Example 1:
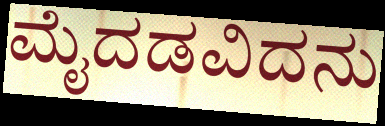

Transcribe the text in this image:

ಮೈದಡವಿದನು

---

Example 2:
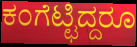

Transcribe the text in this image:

ಕಂಗೆಟ್ಟಿದ್ದರೂ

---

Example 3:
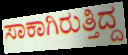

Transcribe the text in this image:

ಸಾಕಾಗಿರುತ್ತಿದ್ದ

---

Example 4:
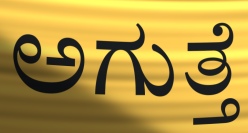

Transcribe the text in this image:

ಅಗುತ್ತೆ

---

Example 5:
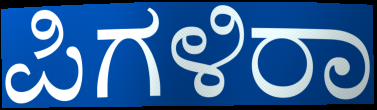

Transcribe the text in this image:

ಪಿಗಳಿರಾ